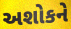
અશોકને